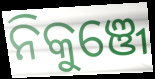
ନିକୁଞ୍ଜେ